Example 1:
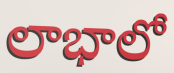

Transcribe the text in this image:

లాభాలో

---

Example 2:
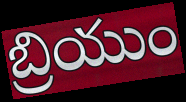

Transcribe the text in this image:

బ్రియుం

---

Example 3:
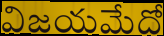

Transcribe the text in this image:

విజయమేదో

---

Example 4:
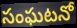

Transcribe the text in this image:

సంఘటనో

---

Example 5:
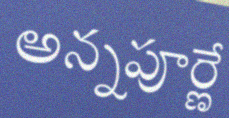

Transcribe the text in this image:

అన్నపూర్ణే